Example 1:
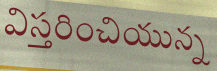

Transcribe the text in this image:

విస్తరించియున్న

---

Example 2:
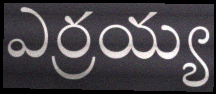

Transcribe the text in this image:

ఎర్రయ్య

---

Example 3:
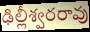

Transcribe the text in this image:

ఢిల్లీశ్వరరావు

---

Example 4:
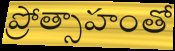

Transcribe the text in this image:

ప్రోత్సాహంతో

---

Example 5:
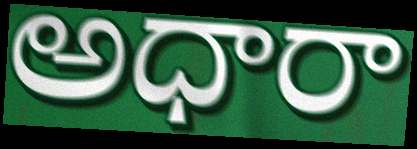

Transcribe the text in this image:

అధారా